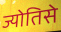
ज्योतिसे